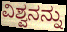
ವಿಶ್ವನನ್ನು